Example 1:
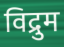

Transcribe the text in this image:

विद्रुम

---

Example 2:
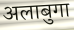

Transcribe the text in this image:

अलाबुगा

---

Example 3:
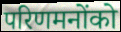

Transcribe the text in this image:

परिणमनोंको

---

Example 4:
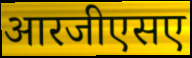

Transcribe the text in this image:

आरजीएसए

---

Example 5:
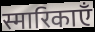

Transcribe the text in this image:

स्मारिकाएँ